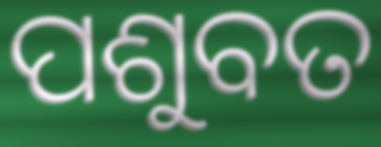
ପଶୁବତ